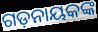
ଗଡ଼ନାୟକଙ୍କ